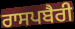
ਰਾਸਪਬੈਰੀ